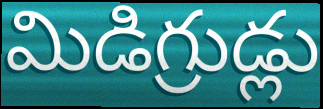
మిడిగ్రుడ్లు